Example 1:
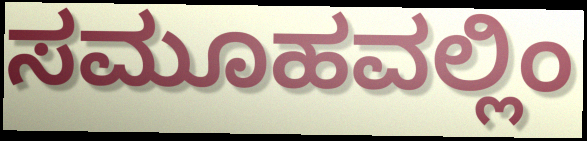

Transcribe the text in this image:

ಸಮೂಹವಲ್ಲಿಂ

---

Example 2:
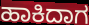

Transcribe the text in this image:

ಹಾಕಿದಾಗ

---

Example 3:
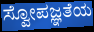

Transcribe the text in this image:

ಸ್ವೋಪಜ್ಞತೆಯ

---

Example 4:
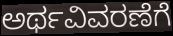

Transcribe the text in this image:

ಅರ್ಥವಿವರಣೆಗೆ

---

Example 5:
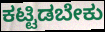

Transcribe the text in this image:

ಕಟ್ಟಿಡಬೇಕು